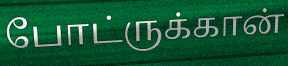
போட்ருக்கான்